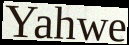
Yahwe